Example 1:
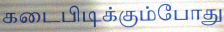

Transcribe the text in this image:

கடைபிடிக்கும்போது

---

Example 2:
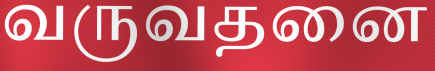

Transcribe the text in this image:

வருவதனை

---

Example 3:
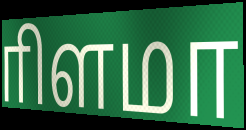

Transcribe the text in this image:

ரிளமா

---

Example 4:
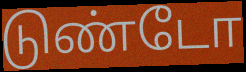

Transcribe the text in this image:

டுண்டோ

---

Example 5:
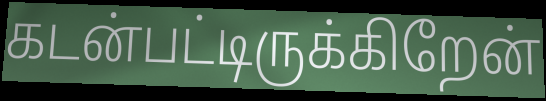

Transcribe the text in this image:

கடன்பட்டிருக்கிறேன்